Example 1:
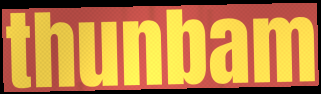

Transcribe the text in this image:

thunbam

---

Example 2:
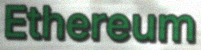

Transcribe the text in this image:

Ethereum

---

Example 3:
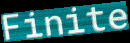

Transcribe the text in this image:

Finite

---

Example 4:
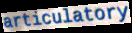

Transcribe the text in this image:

articulatory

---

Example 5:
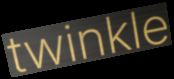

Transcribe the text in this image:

twinkle